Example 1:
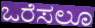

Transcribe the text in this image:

ಒರೆಸಲೂ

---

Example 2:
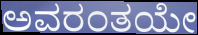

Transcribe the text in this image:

ಅವರಂತಯೇ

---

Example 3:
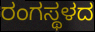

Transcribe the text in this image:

ರಂಗಸ್ಥಳದ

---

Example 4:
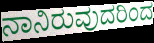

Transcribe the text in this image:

ನಾನಿರುವುದರಿಂದ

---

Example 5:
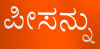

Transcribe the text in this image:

ಪೀಸನ್ನು